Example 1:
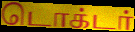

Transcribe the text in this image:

டொக்டர்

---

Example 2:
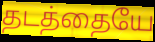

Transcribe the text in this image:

தடத்தையே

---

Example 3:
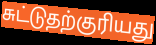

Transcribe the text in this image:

சுட்டுதற்குரியது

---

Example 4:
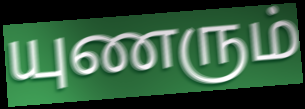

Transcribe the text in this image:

யுணரும்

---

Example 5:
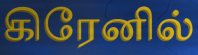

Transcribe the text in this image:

கிரேனில்